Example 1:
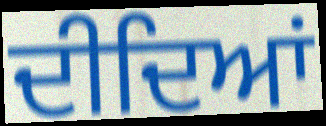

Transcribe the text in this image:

ਦੀਦਿਆਂ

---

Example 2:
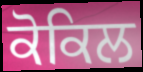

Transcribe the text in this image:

ਕੋਕਿਲ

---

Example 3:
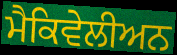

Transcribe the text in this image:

ਮੈਕਿਵੇਲੀਅਨ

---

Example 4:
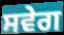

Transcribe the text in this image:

ਸਵੇਗ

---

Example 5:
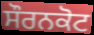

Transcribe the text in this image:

ਸੌਰਨਕੋਟ